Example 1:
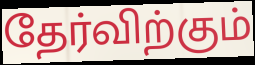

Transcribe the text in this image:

தேர்விற்கும்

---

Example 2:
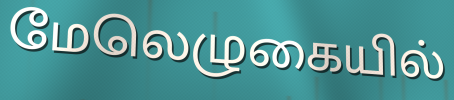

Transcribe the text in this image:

மேலெழுகையில்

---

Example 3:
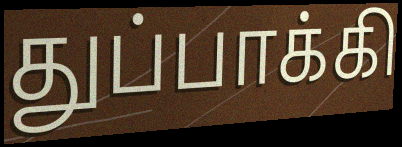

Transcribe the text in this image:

துப்பாக்கி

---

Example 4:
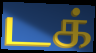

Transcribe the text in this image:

டக்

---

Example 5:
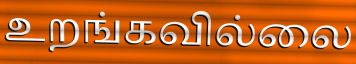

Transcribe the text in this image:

உறங்கவில்லை